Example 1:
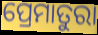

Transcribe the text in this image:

ପ୍ରେମାତୁରା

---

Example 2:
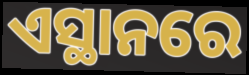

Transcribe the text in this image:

ଏସ୍ଥାନରେ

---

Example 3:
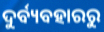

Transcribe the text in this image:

ଦୁର୍ବ୍ୟବହାରରୁ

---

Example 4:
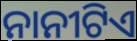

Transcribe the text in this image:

ନାନୀଟିଏ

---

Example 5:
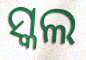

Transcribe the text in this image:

ସ୍କଲ